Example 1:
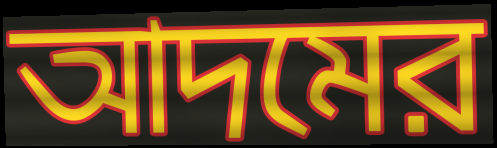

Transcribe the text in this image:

আদমের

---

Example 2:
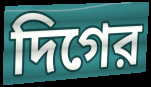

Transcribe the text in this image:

দিগের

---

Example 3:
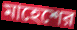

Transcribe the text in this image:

মাহেশের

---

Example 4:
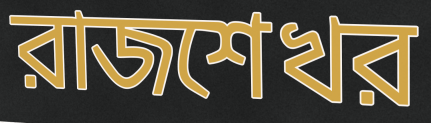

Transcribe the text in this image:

রাজশেখর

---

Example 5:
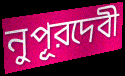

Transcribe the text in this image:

নুপূরদেবী